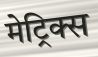
मेट्रिक्‍स